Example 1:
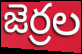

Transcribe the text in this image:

జెర్రల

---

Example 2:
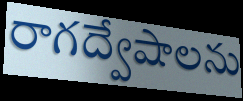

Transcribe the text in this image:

రాగద్వేషాలను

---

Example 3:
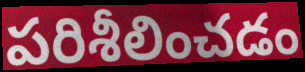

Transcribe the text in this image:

పరిశీలించడం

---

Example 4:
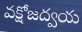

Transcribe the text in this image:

వక్షోజద్వయ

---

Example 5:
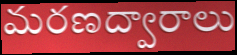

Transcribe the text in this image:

మరణద్వారాలు